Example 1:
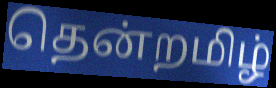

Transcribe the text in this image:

தென்றமிழ்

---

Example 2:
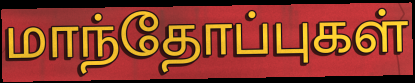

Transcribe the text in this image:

மாந்தோப்புகள்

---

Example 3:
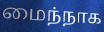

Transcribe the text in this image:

மைந்நாக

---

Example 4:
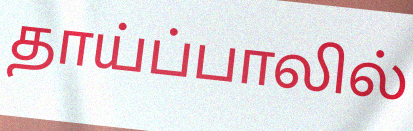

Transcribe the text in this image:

தாய்ப்பாலில்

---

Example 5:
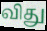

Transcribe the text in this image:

விது